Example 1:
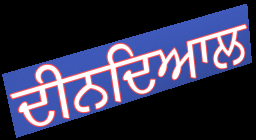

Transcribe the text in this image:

ਦੀਨਦਿਆਲ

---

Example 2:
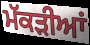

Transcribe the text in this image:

ਮੱਕੜੀਆਂ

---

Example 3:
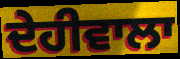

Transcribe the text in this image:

ਦੇਹੀਵਾਲਾ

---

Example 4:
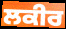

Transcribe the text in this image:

ਲਕੀਰ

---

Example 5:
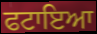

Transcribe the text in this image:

ਫਟਾਇਆ